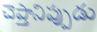
చెప్తానిప్పుడు